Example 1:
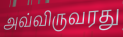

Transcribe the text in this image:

அவ்விருவரது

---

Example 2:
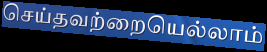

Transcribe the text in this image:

செய்தவற்றையெல்லாம்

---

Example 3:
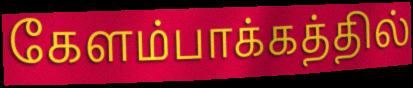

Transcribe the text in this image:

கேளம்பாக்கத்தில்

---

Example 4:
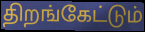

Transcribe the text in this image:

திறங்கேட்டும்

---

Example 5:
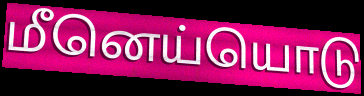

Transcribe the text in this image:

மீனெய்யொடு